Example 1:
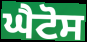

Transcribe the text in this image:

ਘੈਟੋਸ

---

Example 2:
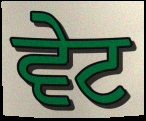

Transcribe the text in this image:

ਵੇਟ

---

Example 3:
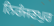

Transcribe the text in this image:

ਨਿਰੰਜਣਪੁਰ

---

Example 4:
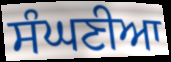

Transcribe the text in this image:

ਸੰਘਣੀਆ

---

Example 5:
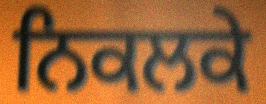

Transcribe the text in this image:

ਨਿਕਲਕੇ